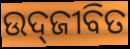
ଉଦ୍‍ଜୀବିତ